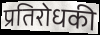
प्रतिरोधकी